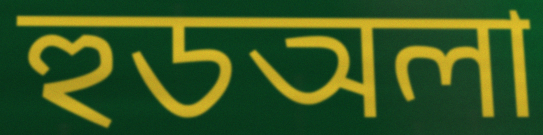
হুডঅলা